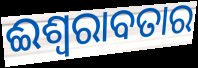
ଈଶ୍ୱରାବତାର